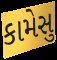
કામેસુ